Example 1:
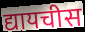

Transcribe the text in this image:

द्यायचीस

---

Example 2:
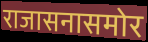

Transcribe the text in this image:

राजासनासमोर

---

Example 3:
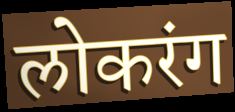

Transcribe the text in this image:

लोकरंग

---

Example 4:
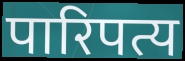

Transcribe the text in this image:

पारिपत्य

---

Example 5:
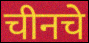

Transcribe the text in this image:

चीनचे